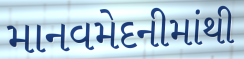
માનવમેદનીમાંથી